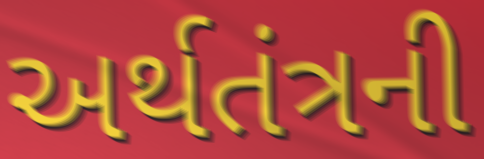
અર્થતંત્રની